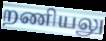
றணியலு